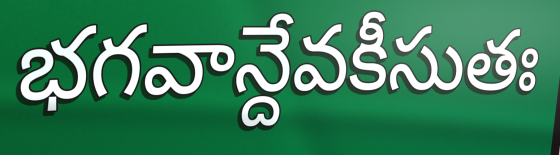
భగవాన్దేవకీసుతః